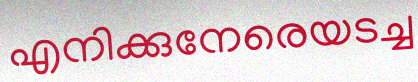
എനിക്കുനേരെയടച്ച